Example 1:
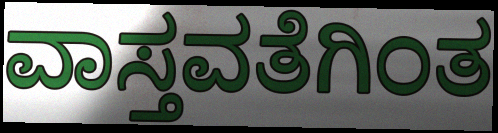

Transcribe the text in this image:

ವಾಸ್ತವತೆಗಿಂತ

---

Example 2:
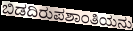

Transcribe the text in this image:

ಬಿಡದಿರುಪಶಾಂತಿಯನು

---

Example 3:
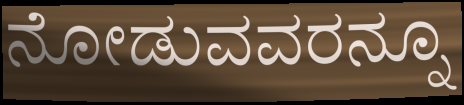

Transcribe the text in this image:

ನೋಡುವವರನ್ನೂ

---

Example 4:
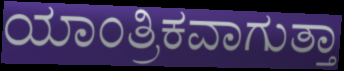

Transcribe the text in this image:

ಯಾಂತ್ರಿಕವಾಗುತ್ತಾ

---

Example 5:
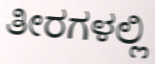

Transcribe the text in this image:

ತೀರಗಳಲ್ಲಿ